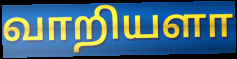
வாறியளா